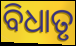
ବିଧାତୃ